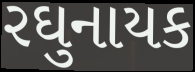
રઘુનાયક